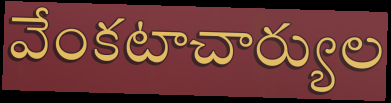
వేంకటాచార్యుల